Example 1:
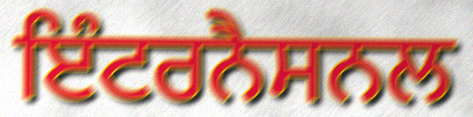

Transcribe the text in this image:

ਇੰਟਰਨੈਸਨਲ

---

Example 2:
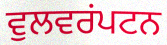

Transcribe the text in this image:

ਵੁਲਵਰਂਪਟਨ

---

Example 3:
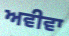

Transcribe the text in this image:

ਅਵੀਵਾ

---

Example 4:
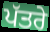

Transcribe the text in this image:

ਪੱਤਰੇ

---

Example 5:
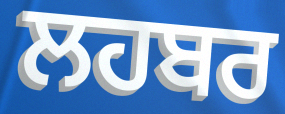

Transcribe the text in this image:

ਲਹਬਰ